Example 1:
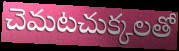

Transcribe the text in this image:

చెమటచుక్కలతో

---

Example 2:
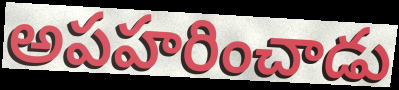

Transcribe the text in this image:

అపహరించాడు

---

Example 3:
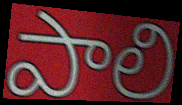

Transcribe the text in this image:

పాలి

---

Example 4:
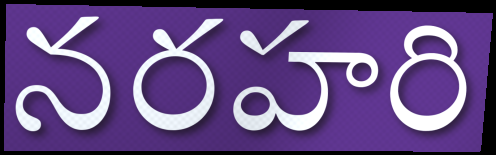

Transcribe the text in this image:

నరహరి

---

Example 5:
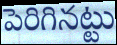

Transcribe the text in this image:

పెరిగినట్టు